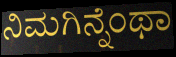
ನಿಮಗಿನ್ನೆಂಥಾ